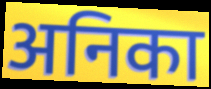
अनिका